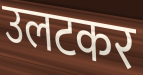
उलटकर